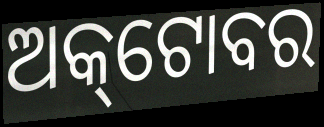
ଅକ୍‌ଟୋବର